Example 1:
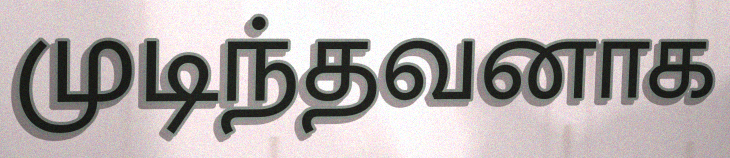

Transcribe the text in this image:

முடிந்தவனாக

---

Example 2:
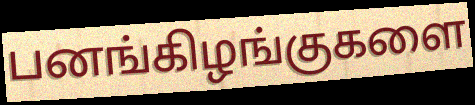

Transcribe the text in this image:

பனங்கிழங்குகளை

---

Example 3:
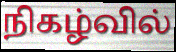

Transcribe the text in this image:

நிகழ்வில்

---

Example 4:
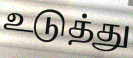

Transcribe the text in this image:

உடுத்து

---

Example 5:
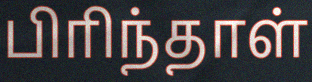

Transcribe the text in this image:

பிரிந்தாள்